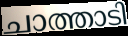
ചാത്താടി